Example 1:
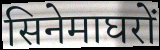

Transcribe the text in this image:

सिनेमाघरों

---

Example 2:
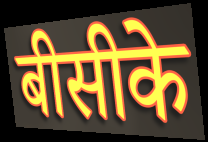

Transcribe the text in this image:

बीसीके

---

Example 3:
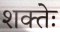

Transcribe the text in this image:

शक्तेः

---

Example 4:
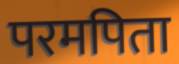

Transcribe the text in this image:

परमपिता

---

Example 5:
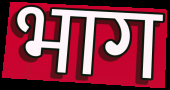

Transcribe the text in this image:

भाग